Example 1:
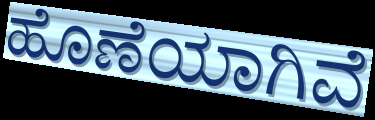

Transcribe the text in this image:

ಹೊಣೆಯಾಗಿವೆ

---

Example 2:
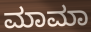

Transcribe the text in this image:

ಮಾಮಾ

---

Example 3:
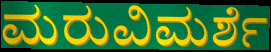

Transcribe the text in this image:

ಮರುವಿಮರ್ಶೆ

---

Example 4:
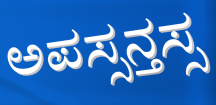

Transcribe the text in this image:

ಅಪಸ್ಸನ್ತಸ್ಸ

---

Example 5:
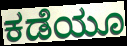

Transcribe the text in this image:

ಕಡೆಯೂ